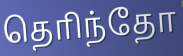
தெரிந்தோ